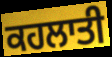
ਕਹਲਾਤੀ